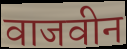
वाजवीन